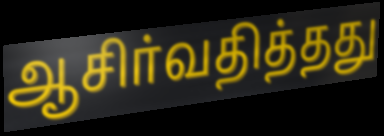
ஆசிர்வதித்தது